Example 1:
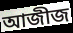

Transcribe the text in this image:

আজীজ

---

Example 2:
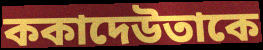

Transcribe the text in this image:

ককাদেউতাকে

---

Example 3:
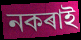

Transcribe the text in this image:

নকৰাই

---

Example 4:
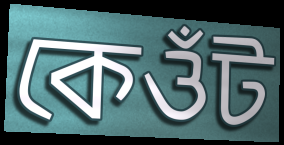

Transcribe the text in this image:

কেওঁট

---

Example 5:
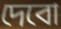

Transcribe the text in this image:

দেবো